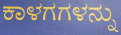
ಕಾಳಗಗಳನ್ನು